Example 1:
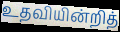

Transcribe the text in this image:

உதவியின்றித்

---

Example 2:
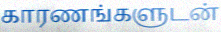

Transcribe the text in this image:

காரணங்களுடன்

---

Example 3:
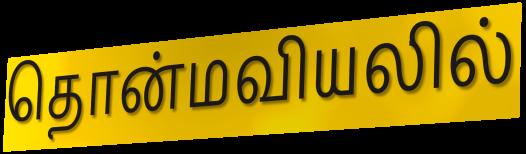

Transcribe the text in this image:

தொன்மவியலில்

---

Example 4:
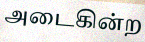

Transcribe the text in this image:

அடைகின்ற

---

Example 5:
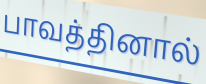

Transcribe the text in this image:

பாவத்தினால்